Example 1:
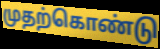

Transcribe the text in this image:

முதற்கொண்டு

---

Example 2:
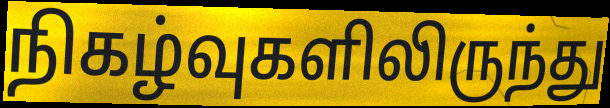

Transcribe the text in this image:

நிகழ்வுகளிலிருந்து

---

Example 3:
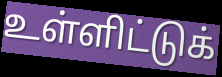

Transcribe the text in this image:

உள்ளிட்டுக்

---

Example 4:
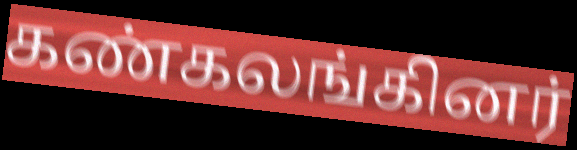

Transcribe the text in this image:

கண்கலங்கினர்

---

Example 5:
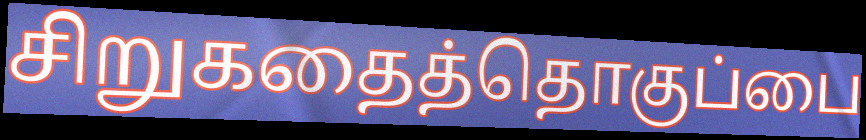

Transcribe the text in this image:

சிறுகதைத்தொகுப்பை